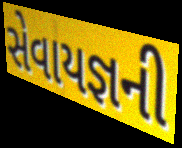
સેવાયજ્ઞની